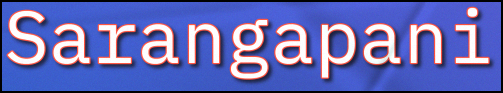
Sarangapani